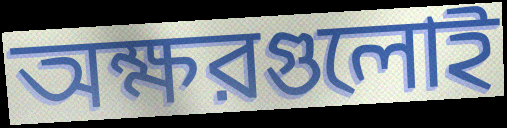
অক্ষরগুলোই